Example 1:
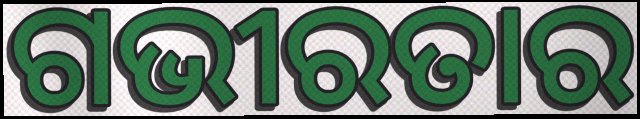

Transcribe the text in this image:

ଗଭୀରତାର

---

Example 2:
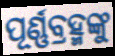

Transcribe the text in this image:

ପୂର୍ଣ୍ଣବ୍ରହ୍ମଙ୍କୁ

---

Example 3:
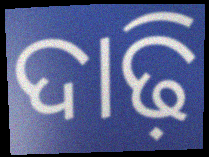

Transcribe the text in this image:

ଦାଢ଼ି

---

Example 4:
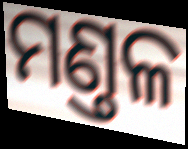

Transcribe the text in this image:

ମଣ୍ତଳ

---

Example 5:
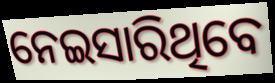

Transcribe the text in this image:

ନେଇସାରିଥିବେ